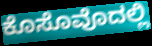
ಕೊಸೊವೊದಲ್ಲಿ